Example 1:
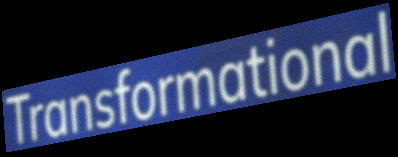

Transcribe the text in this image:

Transformational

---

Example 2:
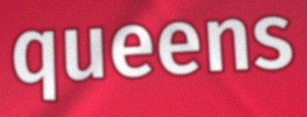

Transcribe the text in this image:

queens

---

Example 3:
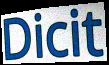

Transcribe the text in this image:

Dicit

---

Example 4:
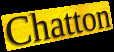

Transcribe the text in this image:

Chatton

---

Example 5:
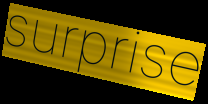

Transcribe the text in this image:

surprise